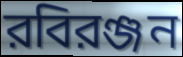
রবিরঞ্জন